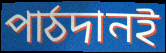
পাঠদানই